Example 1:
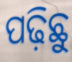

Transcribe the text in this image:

ପଢ଼ିଛୁ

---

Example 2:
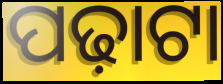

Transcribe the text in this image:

ପଢ଼ାଟା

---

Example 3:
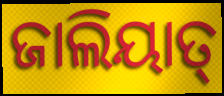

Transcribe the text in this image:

ଜାଲିୟାତ୍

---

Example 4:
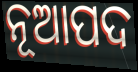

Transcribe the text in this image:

ନୂଆପଦ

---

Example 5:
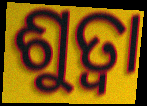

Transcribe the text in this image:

ଶୁତ୍ବା